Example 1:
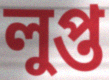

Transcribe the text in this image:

লুপ্ত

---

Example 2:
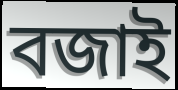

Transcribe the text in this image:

বজাই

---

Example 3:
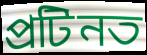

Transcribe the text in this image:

প্ৰটিনত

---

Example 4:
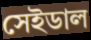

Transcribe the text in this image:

সেইডাল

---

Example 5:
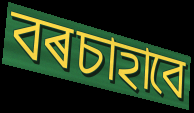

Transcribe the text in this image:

বৰচাহাবে